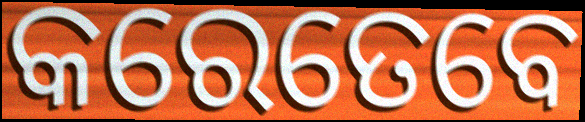
କରେତେବେ